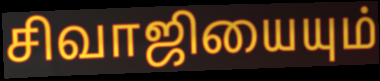
சிவாஜியையும்